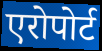
एरोपोर्ट